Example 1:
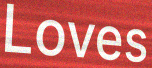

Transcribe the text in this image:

Loves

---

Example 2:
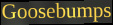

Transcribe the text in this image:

Goosebumps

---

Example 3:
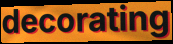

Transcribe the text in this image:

decorating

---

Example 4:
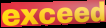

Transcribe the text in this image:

exceed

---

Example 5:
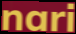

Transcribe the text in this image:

nari